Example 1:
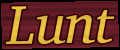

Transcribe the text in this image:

Lunt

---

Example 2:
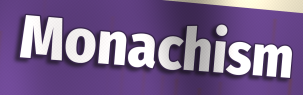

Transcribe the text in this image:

Monachism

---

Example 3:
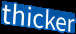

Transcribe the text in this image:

thicker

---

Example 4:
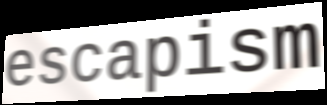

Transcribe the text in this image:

escapism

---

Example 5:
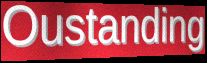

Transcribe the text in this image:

Oustanding